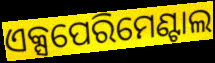
ଏକ୍ସପେରିମେଣ୍ଟାଲ